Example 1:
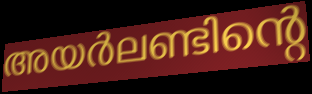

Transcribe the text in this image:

അയർലണ്ടിന്റെ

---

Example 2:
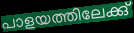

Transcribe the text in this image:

പാളയത്തിലേക്കു്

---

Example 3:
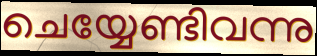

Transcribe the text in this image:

ചെയ്യേണ്ടിവന്നു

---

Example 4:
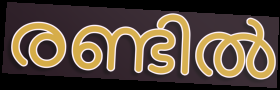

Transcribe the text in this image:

രണ്ടിൽ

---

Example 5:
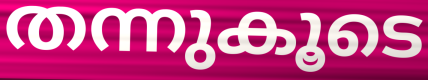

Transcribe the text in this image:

തന്നുകൂടെ